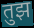
तुझ